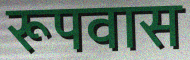
रूपवास